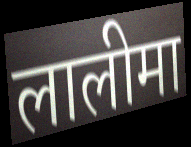
लालीमा